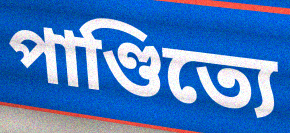
পাণ্ডিত্যে